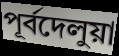
পূর্বদেলুয়া